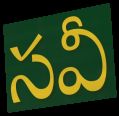
సవీ